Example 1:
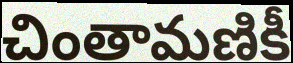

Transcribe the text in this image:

చింతామణికీ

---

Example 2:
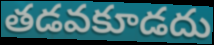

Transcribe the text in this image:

తడవకూడదు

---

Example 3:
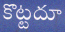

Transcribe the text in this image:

కొట్టదూ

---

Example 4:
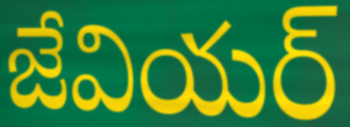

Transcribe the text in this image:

జేవియర్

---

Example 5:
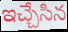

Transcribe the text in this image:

ఇచ్చేసిన